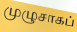
முழுசாகப்